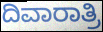
ದಿವಾರಾತ್ರಿ